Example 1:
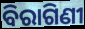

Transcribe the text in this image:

ବିରାଗିଣୀ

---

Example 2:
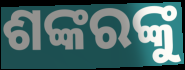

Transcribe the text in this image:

ଶଙ୍କରଙ୍କୁ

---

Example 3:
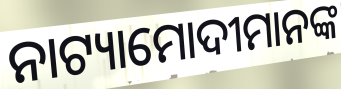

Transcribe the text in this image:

ନାଟ୍ୟାମୋଦୀମାନଙ୍କ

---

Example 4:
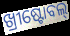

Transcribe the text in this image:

ଖ୍ରୀଷ୍ଟୋବଲ୍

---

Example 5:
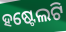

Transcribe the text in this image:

ହଷ୍ଟେଲଟି